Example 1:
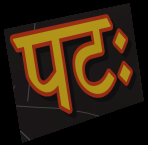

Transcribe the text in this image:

पटः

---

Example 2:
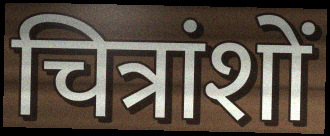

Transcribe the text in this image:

चित्रांशों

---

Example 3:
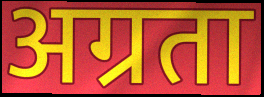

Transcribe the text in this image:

अग्रता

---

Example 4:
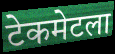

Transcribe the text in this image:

टेकमेटला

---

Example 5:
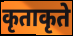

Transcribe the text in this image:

कृताकृते